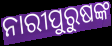
ନାରୀପୁରୁଷଙ୍କ